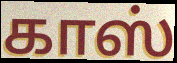
காஸ்